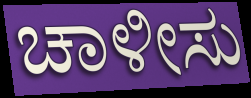
ಚಾಳೀಸು